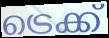
ട്രെക്ക്